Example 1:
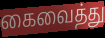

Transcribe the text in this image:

கைவைத்து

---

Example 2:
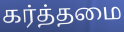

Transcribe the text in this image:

கர்த்தமை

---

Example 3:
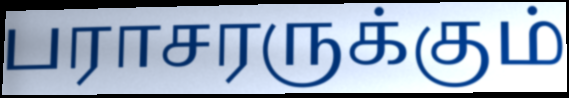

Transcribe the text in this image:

பராசரருக்கும்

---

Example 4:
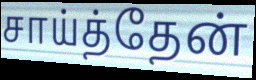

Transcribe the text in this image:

சாய்த்தேன்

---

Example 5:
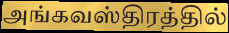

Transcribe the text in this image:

அங்கவஸ்திரத்தில்